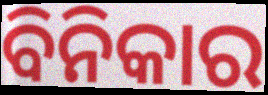
ବିନିକାର